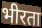
भीरता